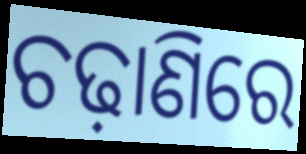
ଚଢ଼ାଣିରେ